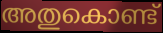
അതുകൊണ്ട്